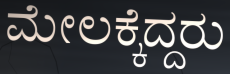
ಮೇಲಕ್ಕೆದ್ದರು